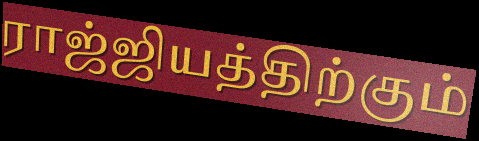
ராஜ்ஜியத்திற்கும்